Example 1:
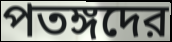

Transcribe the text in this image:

পতঙ্গদের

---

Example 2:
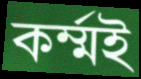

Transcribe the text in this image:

কর্ম্মই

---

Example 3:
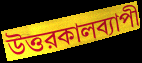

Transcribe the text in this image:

উত্তরকালব্যাপী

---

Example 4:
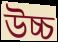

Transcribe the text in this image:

উচ্চ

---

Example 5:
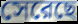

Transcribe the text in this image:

সেরেছে